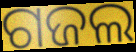
ଗଜଲ